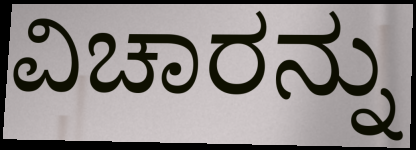
ವಿಚಾರನ್ನು